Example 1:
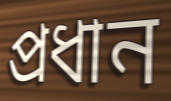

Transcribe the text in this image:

প্রধান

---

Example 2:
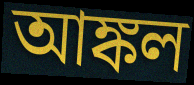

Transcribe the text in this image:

আঙ্কল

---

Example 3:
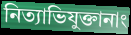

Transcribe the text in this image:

নিত্যাভিযুক্তানাং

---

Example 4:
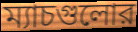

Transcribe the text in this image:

ম্যাচগুলোর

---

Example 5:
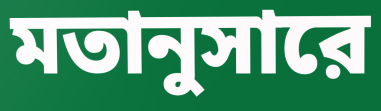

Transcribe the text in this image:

মতানুসারে